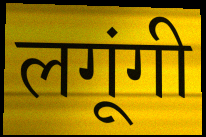
लगूंगी